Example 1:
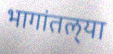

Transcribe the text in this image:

भागांतल्या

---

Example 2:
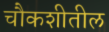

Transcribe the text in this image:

चौकशीतील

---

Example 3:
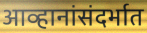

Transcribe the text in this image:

आव्हानांसंदर्भात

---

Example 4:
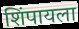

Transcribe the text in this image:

शिंपायला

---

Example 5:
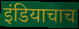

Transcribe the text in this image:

इंडियाचाच